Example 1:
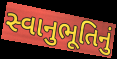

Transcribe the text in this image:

સ્વાનુભૂતિનું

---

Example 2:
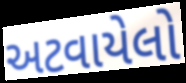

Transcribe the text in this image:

અટવાયેલો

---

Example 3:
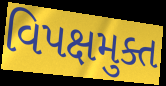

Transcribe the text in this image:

વિપક્ષમુક્ત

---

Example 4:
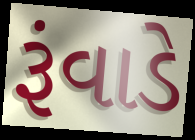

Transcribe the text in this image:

રૂંવાડે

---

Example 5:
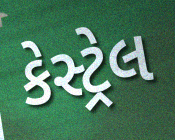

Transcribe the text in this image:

કેસ્ટ્રેલ